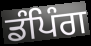
ਡੰਪਿੰਗ